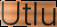
Utlu